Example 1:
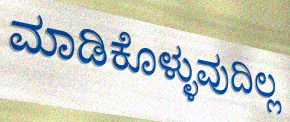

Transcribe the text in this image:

ಮಾಡಿಕೊಳ್ಳುವುದಿಲ್ಲ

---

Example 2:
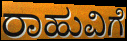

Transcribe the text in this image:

ರಾಹುವಿಗೆ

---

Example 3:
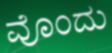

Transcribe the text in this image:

ವೊಂದು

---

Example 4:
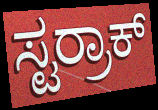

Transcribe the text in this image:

ಸ್ಟರ್ರಾಕ್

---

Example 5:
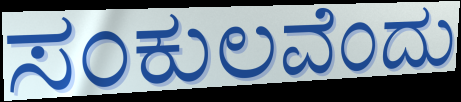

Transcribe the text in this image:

ಸಂಕುಲವೆಂದು